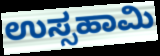
ಉಸ್ಸಹಾಮಿ